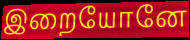
இறையோனே